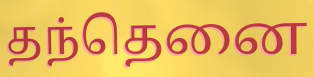
தந்தெனை